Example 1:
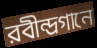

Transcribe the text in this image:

রবীন্দ্রগানে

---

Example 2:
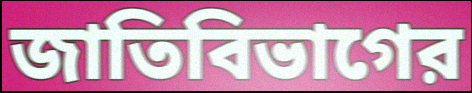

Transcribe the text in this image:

জাতিবিভাগের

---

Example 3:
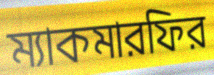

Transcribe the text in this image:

ম্যাকমারফির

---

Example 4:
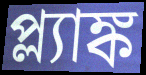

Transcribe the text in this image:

প্ল্যাঙ্ক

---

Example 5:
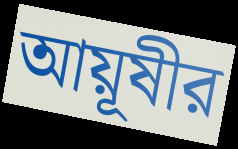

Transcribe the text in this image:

আয়ূষীর